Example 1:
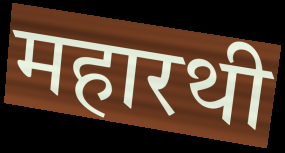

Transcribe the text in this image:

महारथी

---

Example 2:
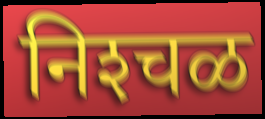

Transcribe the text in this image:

निश्‍चळ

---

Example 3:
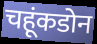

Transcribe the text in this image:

चहूंकडोन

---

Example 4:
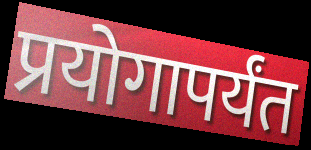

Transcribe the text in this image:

प्रयोगापर्यंत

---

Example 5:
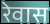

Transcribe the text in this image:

रेवास